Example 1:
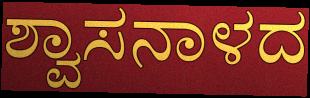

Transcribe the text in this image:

ಶ್ವಾಸನಾಳದ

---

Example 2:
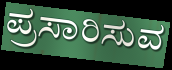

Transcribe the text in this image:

ಪ್ರಸಾರಿಸುವ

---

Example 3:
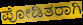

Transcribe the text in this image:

ಪೋಡಿತರಾಗಿ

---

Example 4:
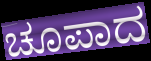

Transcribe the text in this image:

ಚೂಪಾದ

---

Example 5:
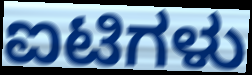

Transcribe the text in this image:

ಐಟಿಗಳು